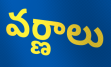
వర్ణాలు